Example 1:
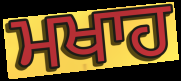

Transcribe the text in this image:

ਮਖਾਹ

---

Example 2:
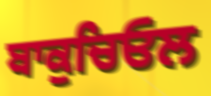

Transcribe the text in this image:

ਬਾਕੁਚਿਓਲ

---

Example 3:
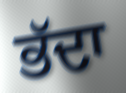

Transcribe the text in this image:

ਭੱਦਾ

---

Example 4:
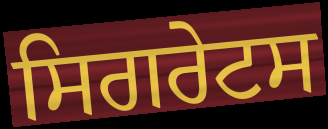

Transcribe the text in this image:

ਸਿਗਰੇਟਸ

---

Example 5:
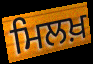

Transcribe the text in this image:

ਮਿਲਖ਼